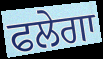
ਫਲੇਗਾ